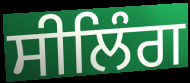
ਸੀਲਿੰਗ